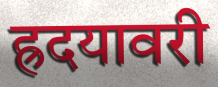
ह्रदयावरी